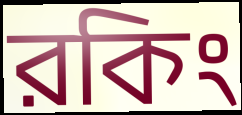
রকিং